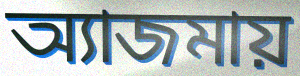
অ্যাজমায়